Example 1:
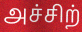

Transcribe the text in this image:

அச்சிற்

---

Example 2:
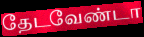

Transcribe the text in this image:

தேடவேண்டா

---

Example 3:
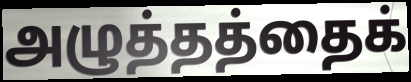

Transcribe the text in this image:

அழுத்தத்தைக்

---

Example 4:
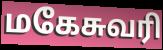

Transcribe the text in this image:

மகேசுவரி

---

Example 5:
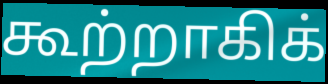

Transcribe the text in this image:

கூற்றாகிக்